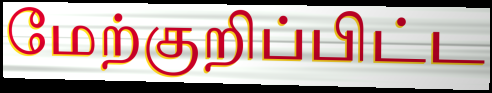
மேற்குறிப்பிட்ட